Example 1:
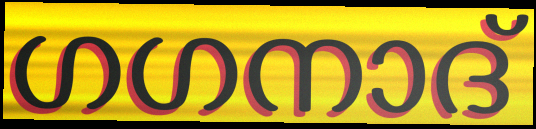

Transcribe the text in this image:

ഗഗനാദ്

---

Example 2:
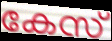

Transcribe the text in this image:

കേസ്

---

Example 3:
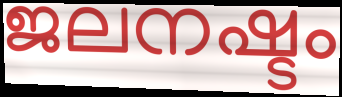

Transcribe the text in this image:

ജലനഷ്ടം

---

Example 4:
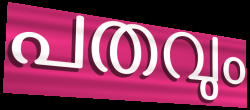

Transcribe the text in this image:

പതവും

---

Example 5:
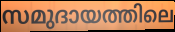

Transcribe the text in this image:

സമുദായത്തിലെ